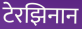
टेरझिनान